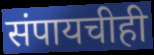
संपायचीही